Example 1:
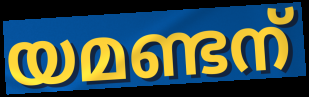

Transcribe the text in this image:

യമണ്ടന്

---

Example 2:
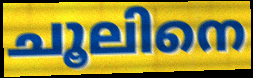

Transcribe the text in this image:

ചൂലിനെ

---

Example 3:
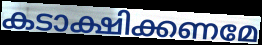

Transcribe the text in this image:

കടാക്ഷിക്കണമേ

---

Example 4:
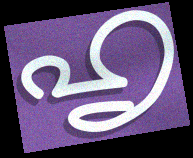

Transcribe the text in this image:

ഹൃ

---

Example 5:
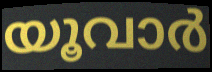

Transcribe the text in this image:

യൂവാർ